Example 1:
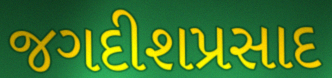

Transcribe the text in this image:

જગદીશપ્રસાદ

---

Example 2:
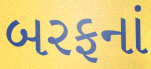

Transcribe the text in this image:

બરફનાં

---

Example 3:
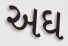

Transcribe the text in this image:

અઘ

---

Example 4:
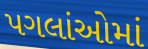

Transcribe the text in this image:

પગલાંઓમાં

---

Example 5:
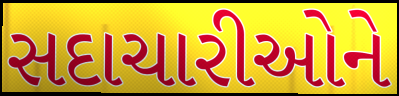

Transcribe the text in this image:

સદાચારીઓને